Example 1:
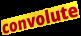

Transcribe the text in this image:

convolute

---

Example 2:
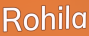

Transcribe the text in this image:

Rohila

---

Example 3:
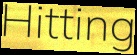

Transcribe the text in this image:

Hitting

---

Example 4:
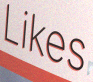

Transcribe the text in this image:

Likes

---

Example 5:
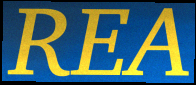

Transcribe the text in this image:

REA